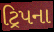
ટ્રિપના